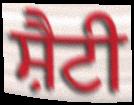
ਸ਼ੈਟੀ